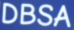
DBSA